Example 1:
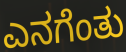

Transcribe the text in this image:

ಎನಗೆಂತು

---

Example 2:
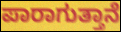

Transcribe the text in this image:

ಪಾರಾಗುತ್ತಾನೆ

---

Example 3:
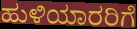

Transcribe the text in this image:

ಹುಳಿಯಾರರಿಗೆ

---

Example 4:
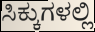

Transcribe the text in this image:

ಸಿಕ್ಕುಗಳಲ್ಲಿ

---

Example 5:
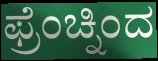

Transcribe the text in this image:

ಫ್ರೆಂಚ್ನಿಂದ